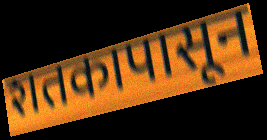
शतकापासून